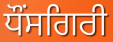
ਧੌਂਸਗਿਰੀ